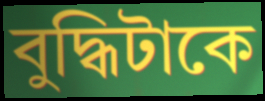
বুদ্ধিটাকে